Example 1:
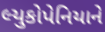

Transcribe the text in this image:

લ્યુકોપેનિયાને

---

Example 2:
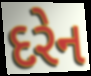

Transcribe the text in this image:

દરેન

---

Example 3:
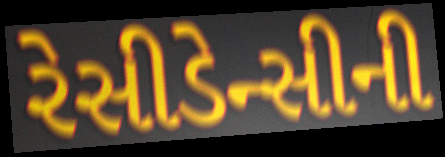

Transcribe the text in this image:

રેસીડેન્સીની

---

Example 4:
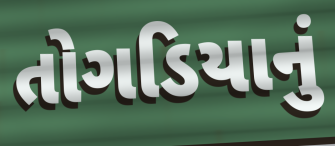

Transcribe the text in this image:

તોગડિયાનું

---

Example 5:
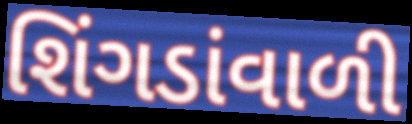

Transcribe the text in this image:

શિંગડાંવાળી